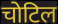
चोटिल